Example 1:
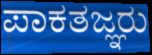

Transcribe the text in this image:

ಪಾಕತಜ್ಞರು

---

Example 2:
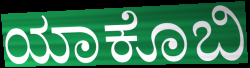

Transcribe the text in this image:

ಯಾಕೊಬಿ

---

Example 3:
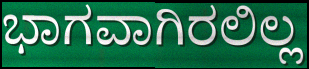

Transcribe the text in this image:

ಭಾಗವಾಗಿರಲಿಲ್ಲ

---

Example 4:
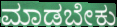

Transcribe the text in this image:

ಮಾಡಬೇಕು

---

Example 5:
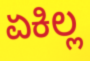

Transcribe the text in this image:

ಏಕಿಲ್ಲ